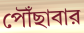
পৌঁছাবার